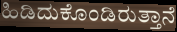
ಹಿಡಿದುಕೊಂಡಿರುತ್ತಾನೆ